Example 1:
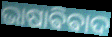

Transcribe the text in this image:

ଭାଷାଵିଵାଦ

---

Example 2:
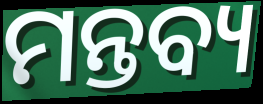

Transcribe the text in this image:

ମନ୍ତବ୍ୟ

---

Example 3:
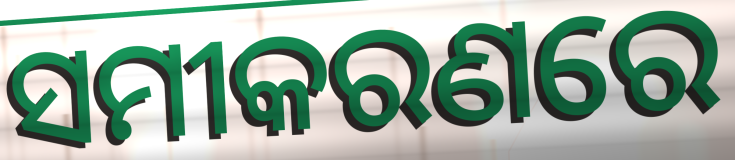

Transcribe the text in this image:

ସମୀକରଣରେ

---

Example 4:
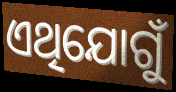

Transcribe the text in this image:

ଏଥିଯୋଗୁଁ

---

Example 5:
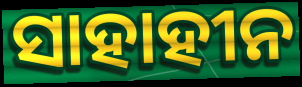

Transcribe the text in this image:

ସାହାହୀନ